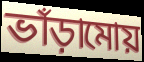
ভাঁড়ামোয়